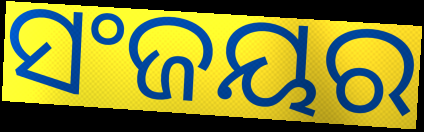
ସଂଜୟର